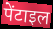
पेंटाइल